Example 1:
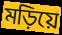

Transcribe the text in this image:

মড়িয়ে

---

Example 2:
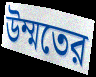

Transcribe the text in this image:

উম্মতের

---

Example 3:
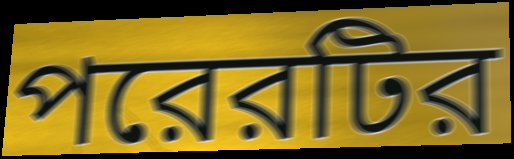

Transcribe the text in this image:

পরেরটির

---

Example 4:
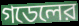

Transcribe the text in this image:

গডেলের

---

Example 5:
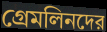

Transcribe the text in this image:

গ্রেমলিনদের